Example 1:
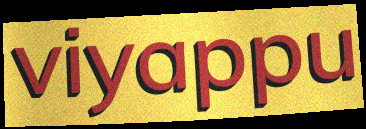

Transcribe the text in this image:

viyappu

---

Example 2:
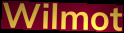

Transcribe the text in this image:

Wilmot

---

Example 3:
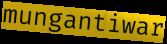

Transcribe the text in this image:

mungantiwar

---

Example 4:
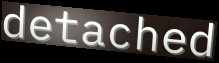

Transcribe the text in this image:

detached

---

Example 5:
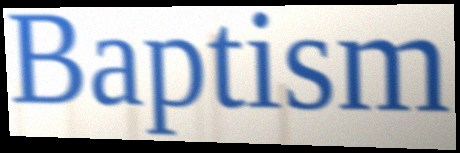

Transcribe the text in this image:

Baptism